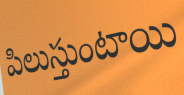
పిలుస్తుంటాయి